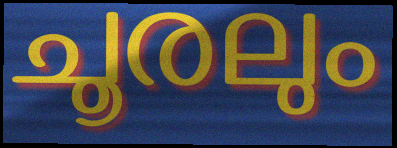
ചൂരലും